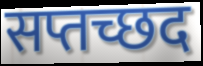
सप्तच्छद